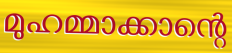
മുഹമ്മാക്കാന്റെ